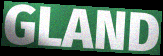
GLAND